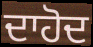
ਦਾਹੋਦ